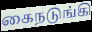
கைநடுங்கி